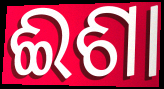
ଈଶା